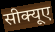
सीक्यूए